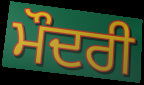
ਮੌਦਰੀ